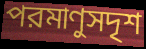
পরমাণুসদৃশ